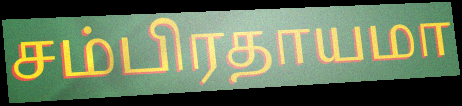
சம்பிரதாயமா